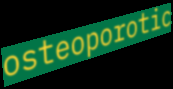
osteoporotic